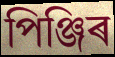
পিঞ্জিৰ